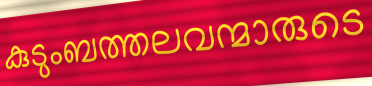
കുടുംബത്തലവന്മാരുടെ